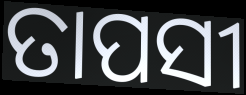
ତାପସୀ